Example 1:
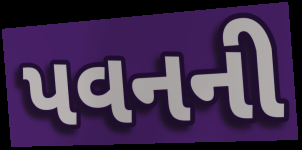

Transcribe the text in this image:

પવનની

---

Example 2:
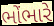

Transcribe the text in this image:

ભોંભારે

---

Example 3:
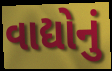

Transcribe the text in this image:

વાદ્યોનું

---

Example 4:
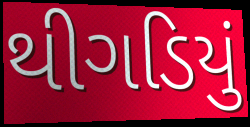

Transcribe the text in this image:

થીગડિયું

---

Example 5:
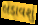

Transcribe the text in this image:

લડાવશું